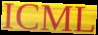
ICML